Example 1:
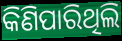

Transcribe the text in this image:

କିଣିପାରିଥିଲି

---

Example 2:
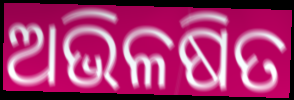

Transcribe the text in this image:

ଅଭିଳଷିତ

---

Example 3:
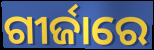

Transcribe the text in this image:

ଗୀର୍ଜାରେ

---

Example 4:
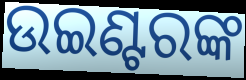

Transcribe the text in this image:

ଉଇଣ୍ଟରଙ୍କ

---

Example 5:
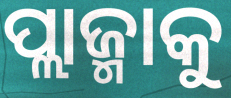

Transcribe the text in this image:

ପ୍ଲାଜ୍ମାକୁ